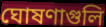
ঘোষণাগুলি